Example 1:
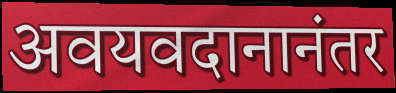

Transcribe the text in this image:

अवयवदानानंतर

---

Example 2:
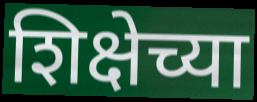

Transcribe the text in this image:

शिक्षेच्या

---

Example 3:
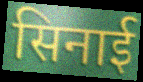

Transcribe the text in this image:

सिनाई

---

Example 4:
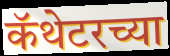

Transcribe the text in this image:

कॅथेटरच्या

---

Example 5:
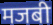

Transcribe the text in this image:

मजबी